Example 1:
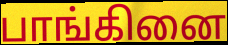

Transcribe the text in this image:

பாங்கினை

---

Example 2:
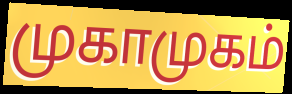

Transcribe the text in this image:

முகாமுகம்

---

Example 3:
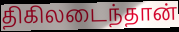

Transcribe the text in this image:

திகிலடைந்தான்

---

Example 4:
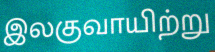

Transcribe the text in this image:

இலகுவாயிற்று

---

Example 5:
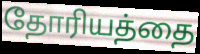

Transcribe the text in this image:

தோரியத்தை